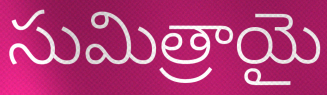
సుమిత్రాయై